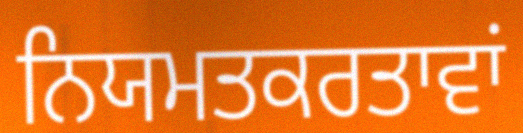
ਨਿਯਮਤਕਰਤਾਵਾਂ